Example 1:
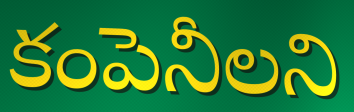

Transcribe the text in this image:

కంపెనీలని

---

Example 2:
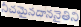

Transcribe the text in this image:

నీచమైనదాననైతిని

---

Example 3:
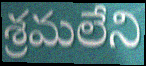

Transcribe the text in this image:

శ్రమలేని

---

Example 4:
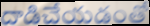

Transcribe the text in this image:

దాడిచేయడంతో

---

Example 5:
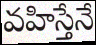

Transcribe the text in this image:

వహిస్తేనే